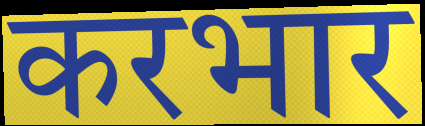
करभार